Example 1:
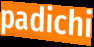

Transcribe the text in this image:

padichi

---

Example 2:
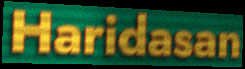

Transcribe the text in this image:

Haridasan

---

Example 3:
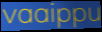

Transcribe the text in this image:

vaaippu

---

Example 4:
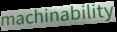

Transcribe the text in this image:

machinability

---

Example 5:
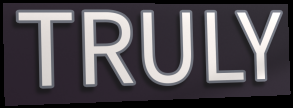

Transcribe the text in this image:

TRULY